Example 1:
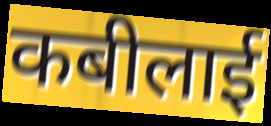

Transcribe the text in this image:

कबीलाई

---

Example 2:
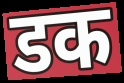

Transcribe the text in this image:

डक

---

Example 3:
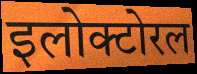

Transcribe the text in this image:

इलोक्टोरल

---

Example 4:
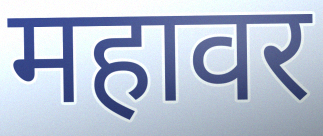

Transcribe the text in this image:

महावर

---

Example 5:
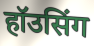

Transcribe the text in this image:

हॉउसिंग